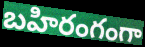
బహిరంగంగా